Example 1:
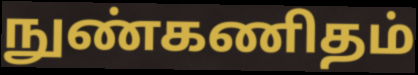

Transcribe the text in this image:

நுண்கணிதம்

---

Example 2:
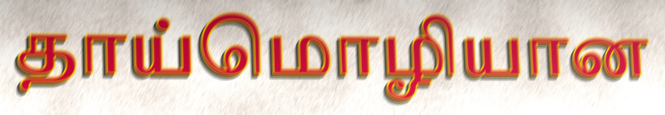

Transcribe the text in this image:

தாய்மொழியான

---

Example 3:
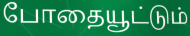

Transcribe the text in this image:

போதையூட்டும்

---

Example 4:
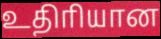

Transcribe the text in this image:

உதிரியான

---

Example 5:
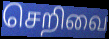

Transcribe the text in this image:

செறிவை